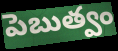
పెబుత్వం